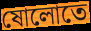
ষোলোতে